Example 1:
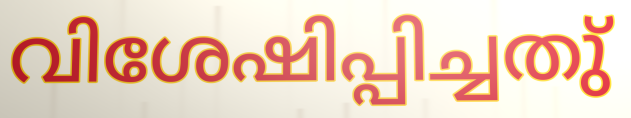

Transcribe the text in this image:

വിശേഷിപ്പിച്ചതു്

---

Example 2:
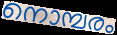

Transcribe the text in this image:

നൊമ്പരം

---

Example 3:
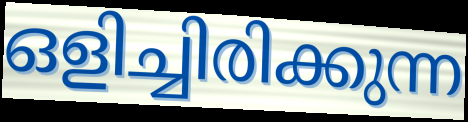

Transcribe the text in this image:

ഒളിച്ചിരിക്കുന്ന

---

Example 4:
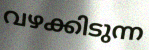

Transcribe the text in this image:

വഴക്കിടുന്ന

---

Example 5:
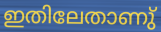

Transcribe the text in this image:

ഇതിലേതാണു്